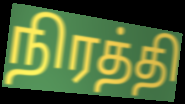
நிரத்தி